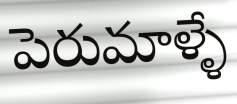
పెరుమాళ్ళే